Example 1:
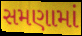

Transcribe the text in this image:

સમણામાં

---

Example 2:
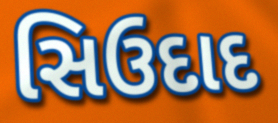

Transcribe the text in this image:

સિઉદાદ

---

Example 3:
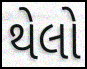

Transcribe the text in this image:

થેલો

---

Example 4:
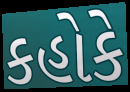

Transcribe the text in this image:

કહોકે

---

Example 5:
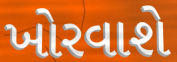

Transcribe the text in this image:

ખોરવાશે